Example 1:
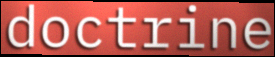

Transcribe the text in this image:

doctrine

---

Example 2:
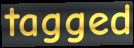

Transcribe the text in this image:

tagged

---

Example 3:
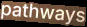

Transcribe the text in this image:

pathways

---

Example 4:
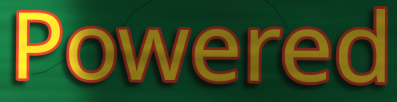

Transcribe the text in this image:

Powered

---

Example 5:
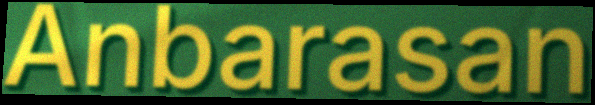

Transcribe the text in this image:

Anbarasan